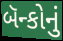
બૅન્કોનું